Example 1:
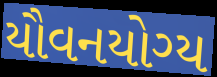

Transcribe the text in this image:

યૌવનયોગ્ય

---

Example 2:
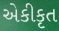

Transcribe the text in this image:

એકીકૃત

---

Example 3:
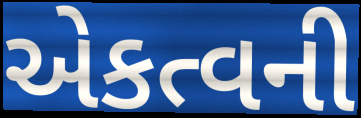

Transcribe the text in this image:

એકત્વની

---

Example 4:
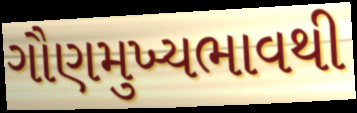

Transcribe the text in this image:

ગૌણમુખ્યભાવથી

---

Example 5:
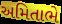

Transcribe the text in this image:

અમિતાભે